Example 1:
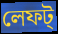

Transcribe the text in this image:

লেফট্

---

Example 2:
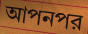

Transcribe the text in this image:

আপনপর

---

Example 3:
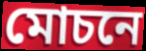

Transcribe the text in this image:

মোচনে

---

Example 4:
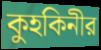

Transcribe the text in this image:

কুহকিনীর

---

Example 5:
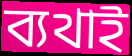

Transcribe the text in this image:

ব্যথাই